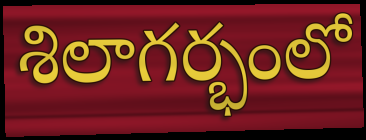
శిలాగర్భంలో